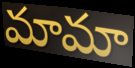
మామా